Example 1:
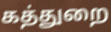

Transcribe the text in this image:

கத்துறை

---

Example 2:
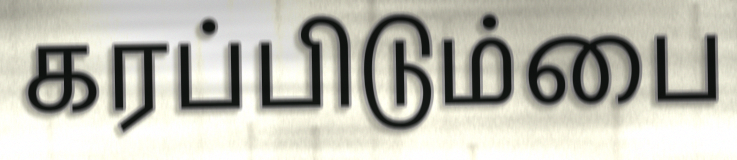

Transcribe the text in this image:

கரப்பிடும்பை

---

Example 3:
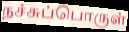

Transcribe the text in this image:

நச்சுப்பொருள்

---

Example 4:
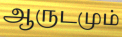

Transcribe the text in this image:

ஆருடமும்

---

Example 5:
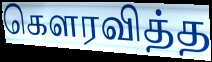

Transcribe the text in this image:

கெளரவித்த